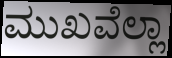
ಮುಖವೆಲ್ಲಾ